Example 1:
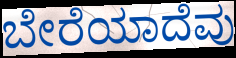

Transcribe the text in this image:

ಬೇರೆಯಾದೆವು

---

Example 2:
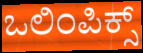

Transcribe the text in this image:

ಒಲಿಂಪಿಕ್ಸ್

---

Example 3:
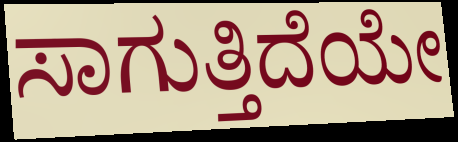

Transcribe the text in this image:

ಸಾಗುತ್ತಿದೆಯೇ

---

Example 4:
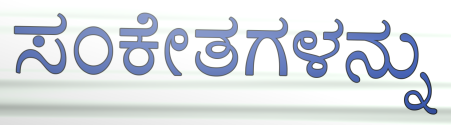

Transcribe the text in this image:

ಸಂಕೇತಗಳನ್ನು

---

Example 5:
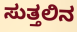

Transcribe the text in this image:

ಸುತ್ತಲಿನ